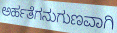
ಅರ್ಹತೆಗನುಗುಣವಾಗಿ